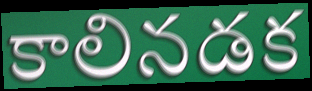
కాలినడక